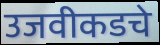
उजवीकडचे